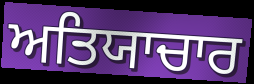
ਅਤਿਯਾਚਾਰ